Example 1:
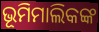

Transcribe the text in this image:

ଭୂମିମାଲିକଙ୍କ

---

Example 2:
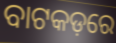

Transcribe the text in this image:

ବାଟକଡ଼ରେ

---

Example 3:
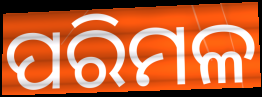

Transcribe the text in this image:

ପରିମଳ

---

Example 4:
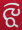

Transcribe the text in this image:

ଝି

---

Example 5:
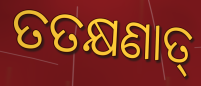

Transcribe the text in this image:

ତତକ୍ଷଣାତ୍